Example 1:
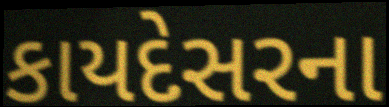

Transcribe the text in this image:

કાયદેસરના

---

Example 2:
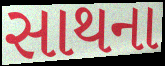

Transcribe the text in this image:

સાથના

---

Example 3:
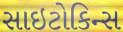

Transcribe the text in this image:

સાઇટોકિન્સ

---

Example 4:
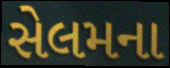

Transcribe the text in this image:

સેલમના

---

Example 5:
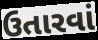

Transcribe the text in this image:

ઉતારવાં